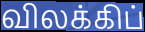
விலக்கிப்